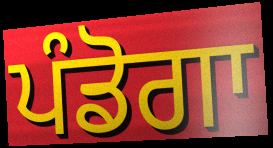
ਪੰਡੋਗਾ